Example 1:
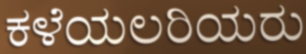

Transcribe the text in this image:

ಕಳೆಯಲರಿಯರು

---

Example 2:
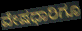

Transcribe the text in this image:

ವೇಷಧಾರಿಗೂ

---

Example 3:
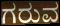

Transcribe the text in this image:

ಗರುವ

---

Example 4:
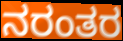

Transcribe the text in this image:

ನರಂತರ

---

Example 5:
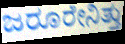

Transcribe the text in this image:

ಜರೂರೇನಿತ್ತು